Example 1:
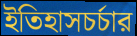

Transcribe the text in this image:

ইতিহাসচর্চার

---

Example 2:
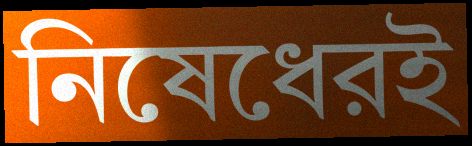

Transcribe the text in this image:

নিষেধেরই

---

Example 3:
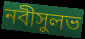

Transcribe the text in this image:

নবীসুলভ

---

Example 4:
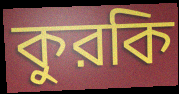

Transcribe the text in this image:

কুরকি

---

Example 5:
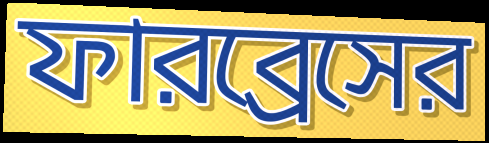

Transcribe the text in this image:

ফারব্রেসের